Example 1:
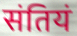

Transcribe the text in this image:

संतियं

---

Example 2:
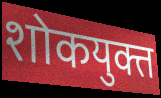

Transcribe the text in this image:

शोकयुक्त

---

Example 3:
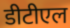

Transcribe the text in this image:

डीटीएल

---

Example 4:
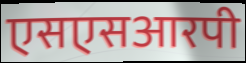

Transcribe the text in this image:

एसएसआरपी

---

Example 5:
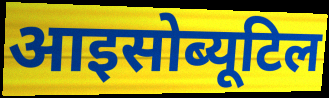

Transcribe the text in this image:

आइसोब्यूटिल